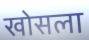
खोसला